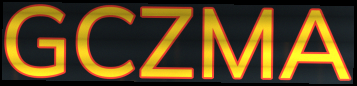
GCZMA